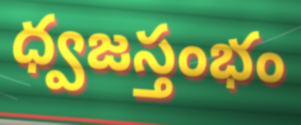
ధ్వజస్తంభం